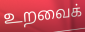
உறவைக்